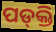
ପଡ୍‌କ୍ତି